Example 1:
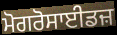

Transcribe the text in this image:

ਮੋਗਰੋਸਾਈਡਜ਼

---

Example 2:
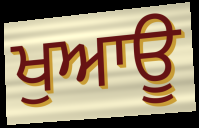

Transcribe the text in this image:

ਖੁਆਊ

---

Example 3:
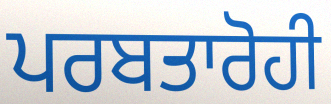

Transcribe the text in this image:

ਪਰਬਤਾਰੋਹੀ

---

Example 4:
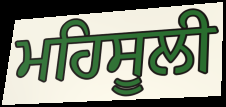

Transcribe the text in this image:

ਮਹਿਸੂਲੀ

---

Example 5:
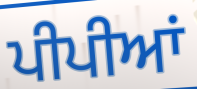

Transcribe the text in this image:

ਪੀਪੀਆਂ